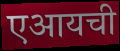
एआयची